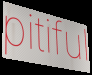
pitiful